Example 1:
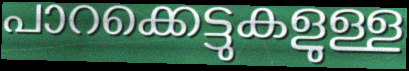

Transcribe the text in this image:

പാറക്കെട്ടുകളുള്ള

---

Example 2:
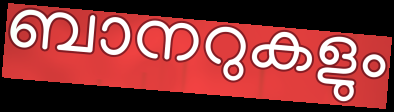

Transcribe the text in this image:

ബാനറുകളും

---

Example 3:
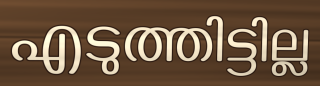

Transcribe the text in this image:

എടുത്തിട്ടില്ല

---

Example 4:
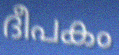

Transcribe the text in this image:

ദീപകം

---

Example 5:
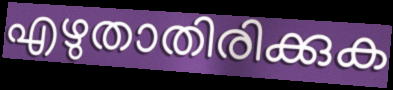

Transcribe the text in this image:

എഴുതാതിരിക്കുക